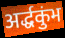
अर्द्धकुंभ